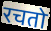
रचतो